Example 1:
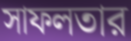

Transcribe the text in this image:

সাফলতার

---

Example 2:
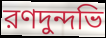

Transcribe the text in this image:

রণদুন্দভি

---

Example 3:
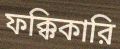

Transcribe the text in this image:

ফক্কিকারি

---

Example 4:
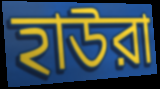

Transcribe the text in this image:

হাউরা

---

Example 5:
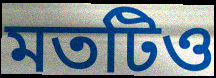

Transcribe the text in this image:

মতটিও